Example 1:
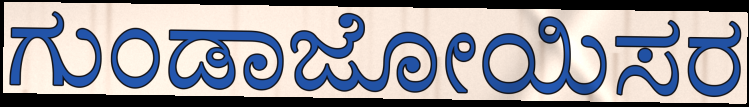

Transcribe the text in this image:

ಗುಂಡಾಜೋಯಿಸರ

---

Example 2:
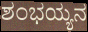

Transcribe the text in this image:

ಶಂಭಯ್ಯನ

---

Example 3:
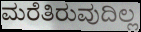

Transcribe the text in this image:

ಮರೆತಿರುವುದಿಲ್ಲ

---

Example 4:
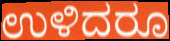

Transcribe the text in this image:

ಉಳಿದರೂ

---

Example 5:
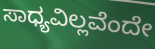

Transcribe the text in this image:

ಸಾಧ್ಯವಿಲ್ಲವೆಂದೇ